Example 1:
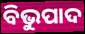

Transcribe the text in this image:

ବିଭୁପାଦ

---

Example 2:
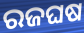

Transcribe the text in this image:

ରଜଘଷ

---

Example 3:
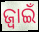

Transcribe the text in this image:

ଜ୍ଵାଇଁ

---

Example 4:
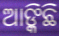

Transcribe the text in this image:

ଆଙ୍କିଛି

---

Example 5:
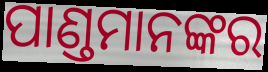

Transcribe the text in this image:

ପାଣ୍ଡମାନଙ୍କର